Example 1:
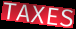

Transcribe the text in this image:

TAXES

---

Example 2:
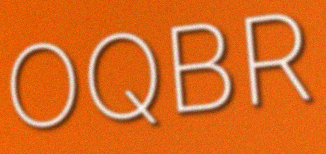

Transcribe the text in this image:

OQBR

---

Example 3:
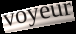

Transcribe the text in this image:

voyeur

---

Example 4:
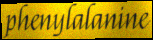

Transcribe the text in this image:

phenylalanine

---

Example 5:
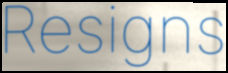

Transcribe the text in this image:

Resigns